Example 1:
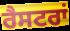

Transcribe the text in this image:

ਰੈਸਟਰਾਂ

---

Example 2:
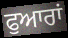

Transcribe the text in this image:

ਫੁਆਰਾਂ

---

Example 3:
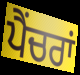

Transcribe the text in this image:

ਪੈਂਚਰਾਂ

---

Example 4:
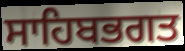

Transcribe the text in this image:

ਸਾਹਿਬਭਗਤ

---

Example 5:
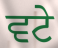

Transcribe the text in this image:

ਵਟੇ